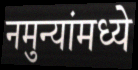
नमुन्यांमध्ये